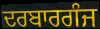
ਦਰਬਾਰਗੰਜ